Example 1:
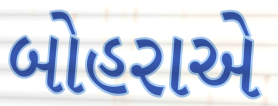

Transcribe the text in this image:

બોહરાએ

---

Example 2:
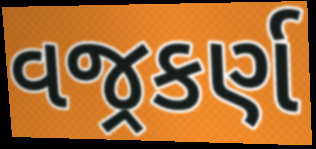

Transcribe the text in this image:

વજ્રકર્ણ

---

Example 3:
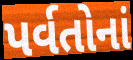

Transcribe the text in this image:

પર્વતોનાં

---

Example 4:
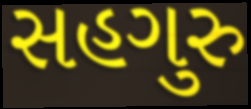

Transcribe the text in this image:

સહગુરુ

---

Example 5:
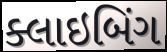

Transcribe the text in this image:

ક્લાઇબિંગ